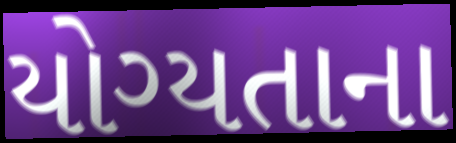
યોગ્યતાના